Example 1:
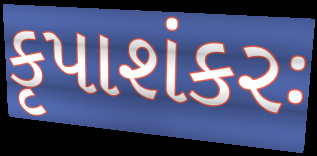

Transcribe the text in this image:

કૃપાશંકરઃ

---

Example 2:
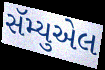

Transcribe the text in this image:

સૅમ્યુએલ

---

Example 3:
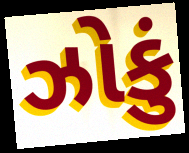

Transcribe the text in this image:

ઝોકું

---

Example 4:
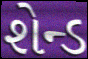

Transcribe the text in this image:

શેન્ડ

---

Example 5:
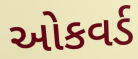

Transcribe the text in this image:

ઓકવર્ડ